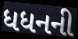
ધધનની